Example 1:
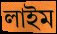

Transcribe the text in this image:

লাইম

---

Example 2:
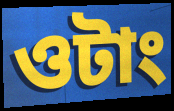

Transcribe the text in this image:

ওটাং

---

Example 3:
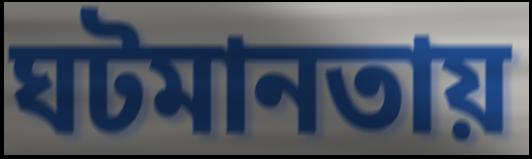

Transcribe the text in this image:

ঘটমানতায়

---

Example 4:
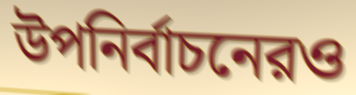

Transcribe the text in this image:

উপনির্বাচনেরও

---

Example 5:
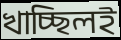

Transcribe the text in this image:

খাচ্ছিলই